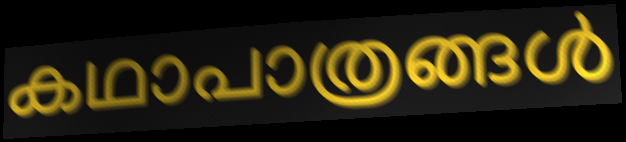
കഥാപാത്രങ്ങൾ